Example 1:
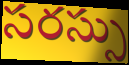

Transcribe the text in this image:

సరస్సు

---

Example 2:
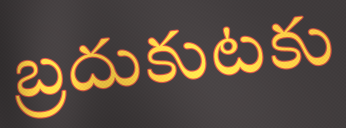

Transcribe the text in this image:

బ్రదుకుటకు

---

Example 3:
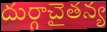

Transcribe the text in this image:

దుర్గాచైతన్య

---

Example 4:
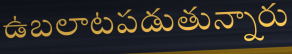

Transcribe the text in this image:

ఉబలాటపడుతున్నారు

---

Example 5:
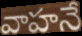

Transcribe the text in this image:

వాహనే